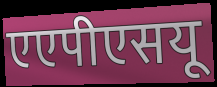
एएपीएसयू